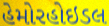
હેમોરહોઇડલ